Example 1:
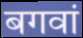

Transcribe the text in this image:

बगवां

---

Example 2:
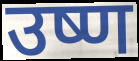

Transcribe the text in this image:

उष्ण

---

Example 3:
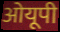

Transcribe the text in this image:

ओयूपी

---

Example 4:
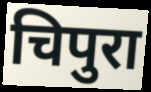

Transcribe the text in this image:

चिपुरा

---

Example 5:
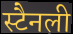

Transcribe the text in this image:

स्टैनली